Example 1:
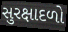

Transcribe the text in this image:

સુરક્ષાદળો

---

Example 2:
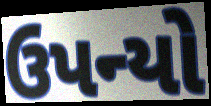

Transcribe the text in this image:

ઉપન્યો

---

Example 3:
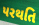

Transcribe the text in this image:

પરથતિ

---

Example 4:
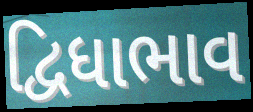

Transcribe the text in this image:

દ્વિધાભાવ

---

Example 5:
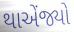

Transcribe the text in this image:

થાએંજ્યો